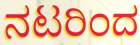
ನಟರಿಂದ